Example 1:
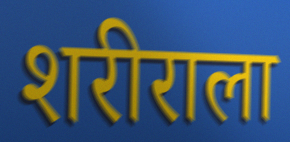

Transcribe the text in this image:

शरीराला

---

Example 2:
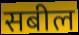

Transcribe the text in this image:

सबील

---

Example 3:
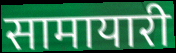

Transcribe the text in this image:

सामायारी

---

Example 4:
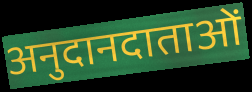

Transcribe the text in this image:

अनुदानदाताओं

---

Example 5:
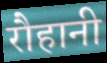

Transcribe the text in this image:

रौहानी